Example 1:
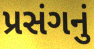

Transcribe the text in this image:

પ્રસંગનું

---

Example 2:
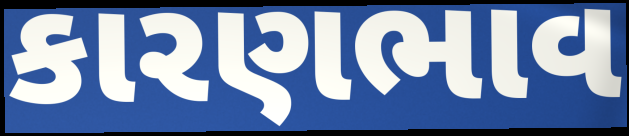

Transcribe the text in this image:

કારણભાવ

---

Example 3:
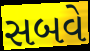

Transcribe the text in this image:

સબવે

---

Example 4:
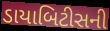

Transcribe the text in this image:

ડાયાબિટીસની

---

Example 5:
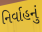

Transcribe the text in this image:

નિર્વાહનું